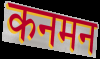
कनमन